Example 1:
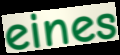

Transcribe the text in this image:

eines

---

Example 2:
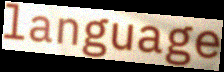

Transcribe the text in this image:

language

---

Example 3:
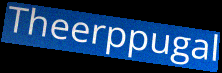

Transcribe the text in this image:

Theerppugal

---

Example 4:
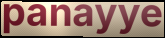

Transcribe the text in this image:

panayye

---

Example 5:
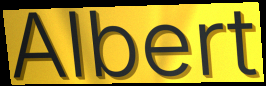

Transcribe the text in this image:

Albert